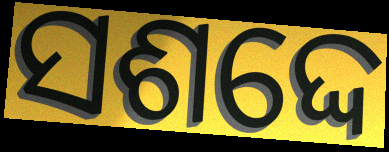
ସଶଦ୍ଦେ